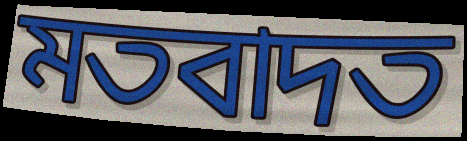
মতবাদত